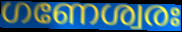
ഗണേശ്വരഃ